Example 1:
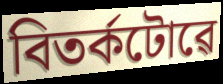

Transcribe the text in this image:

বিতৰ্কটোৱে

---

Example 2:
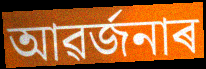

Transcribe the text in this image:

আৱৰ্জনাৰ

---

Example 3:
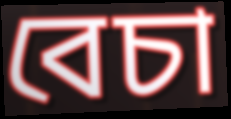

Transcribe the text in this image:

বেচা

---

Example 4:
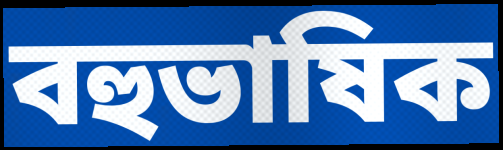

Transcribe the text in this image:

বহুভাষিক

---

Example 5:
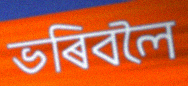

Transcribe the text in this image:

ভৰিবলৈ